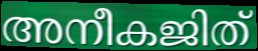
അനീകജിത്